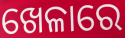
ଖେଳାରେ